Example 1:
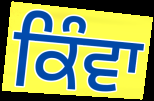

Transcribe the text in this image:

ਕਿੰਵਾ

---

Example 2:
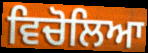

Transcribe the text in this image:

ਵਿਚੋਲਿਆ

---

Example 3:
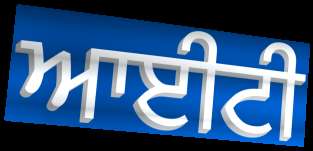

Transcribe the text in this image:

ਆਈਟੀ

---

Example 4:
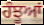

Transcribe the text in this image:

ਹੰਝੂਆਂ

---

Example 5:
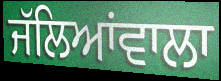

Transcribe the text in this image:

ਜੱਲਿਆਂਵਾਲਾ